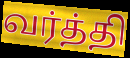
வர்த்தி